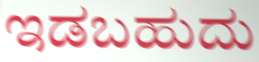
ಇಡಬಹುದು